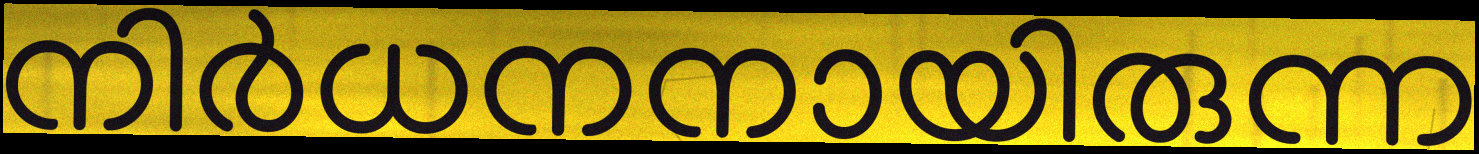
നിർധനനായിരുന്ന